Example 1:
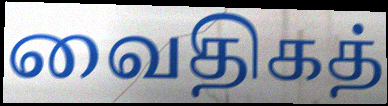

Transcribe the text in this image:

வைதிகத்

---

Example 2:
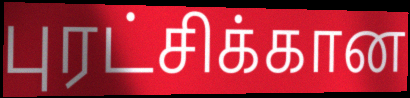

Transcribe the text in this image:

புரட்சிக்கான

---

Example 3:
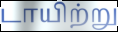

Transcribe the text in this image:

டாயிற்று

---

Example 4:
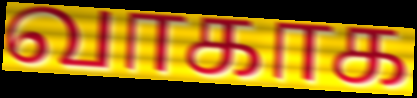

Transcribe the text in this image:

வாகாக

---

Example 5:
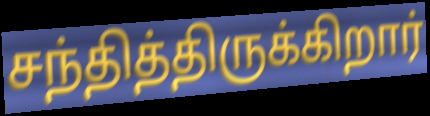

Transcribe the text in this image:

சந்தித்திருக்கிறார்